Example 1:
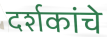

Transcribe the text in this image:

दर्शकांचे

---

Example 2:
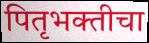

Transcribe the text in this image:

पितृभक्तीचा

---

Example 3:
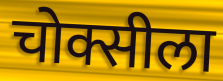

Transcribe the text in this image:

चोक्सीला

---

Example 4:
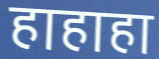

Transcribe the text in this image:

हाहाहा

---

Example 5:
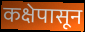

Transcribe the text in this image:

कक्षेपासून